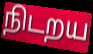
நிடறய